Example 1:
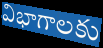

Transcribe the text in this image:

విభాగాలకు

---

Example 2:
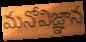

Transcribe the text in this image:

మనోవిజ్ఞాన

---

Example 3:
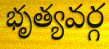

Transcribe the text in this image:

భృత్యవర్గ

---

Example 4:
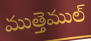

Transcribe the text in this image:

ముత్తెముల్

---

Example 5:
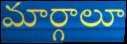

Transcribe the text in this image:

మార్గాలూ